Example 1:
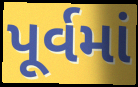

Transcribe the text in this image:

પૂર્વમાં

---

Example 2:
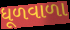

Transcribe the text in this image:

ધૂળવાળા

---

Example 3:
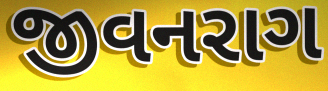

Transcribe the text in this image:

જીવનરાગ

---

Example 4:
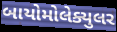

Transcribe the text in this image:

બાયોમોલેક્યુલર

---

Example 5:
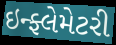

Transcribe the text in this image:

ઇન્ફ્લેમેટરી